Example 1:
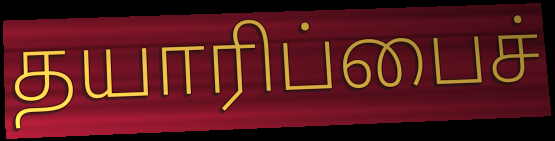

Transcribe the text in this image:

தயாரிப்பைச்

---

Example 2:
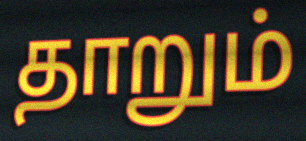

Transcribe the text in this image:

தாறும்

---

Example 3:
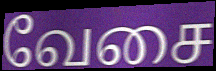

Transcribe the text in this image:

வேசை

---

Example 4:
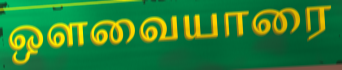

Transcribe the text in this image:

ஔவையாரை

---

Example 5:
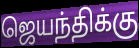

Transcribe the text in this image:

ஜெயந்திக்கு